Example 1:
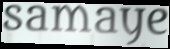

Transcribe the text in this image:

samaye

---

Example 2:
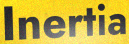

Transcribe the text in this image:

Inertia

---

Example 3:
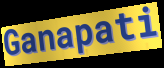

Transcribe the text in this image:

Ganapati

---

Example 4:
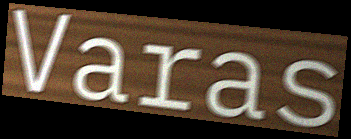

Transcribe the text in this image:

Varas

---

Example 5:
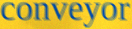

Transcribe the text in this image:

conveyor